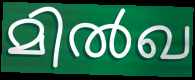
മിൽഖ